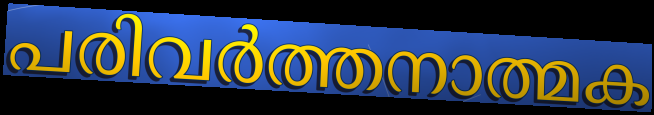
പരിവർത്തനാത്മക